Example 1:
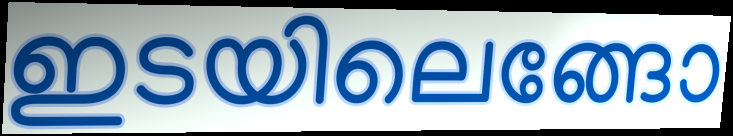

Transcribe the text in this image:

ഇടയിലെങ്ങോ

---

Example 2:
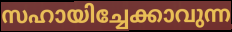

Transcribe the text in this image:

സഹായിച്ചേക്കാവുന്ന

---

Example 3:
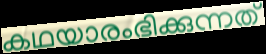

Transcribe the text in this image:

കഥയാരംഭിക്കുന്നത്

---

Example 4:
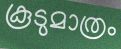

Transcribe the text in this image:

കൂടുമാത്രം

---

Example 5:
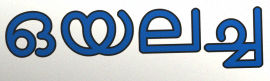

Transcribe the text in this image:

ഒയലച്ച